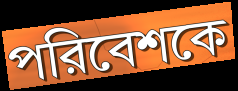
পরিবেশকে